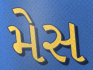
મેસ